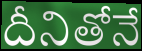
దీనితోనే